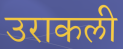
उराकली